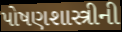
પોષણશાસ્ત્રીની